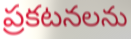
ప్రకటనలను